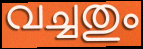
വച്ചതും